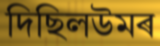
দিছিলউমৰ